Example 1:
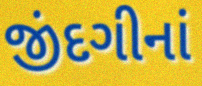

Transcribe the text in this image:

જીંદગીનાં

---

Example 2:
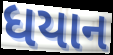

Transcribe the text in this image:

ધયાન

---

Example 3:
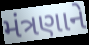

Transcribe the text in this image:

મંત્રણાને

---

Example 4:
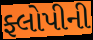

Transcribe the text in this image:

ફ્લોપીની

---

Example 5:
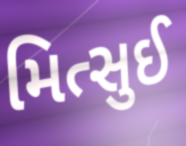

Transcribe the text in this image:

મિત્સુઈ